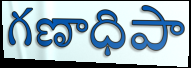
గణాధిపా